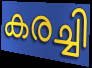
കരച്ചി